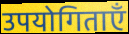
उपयोगिताएँ